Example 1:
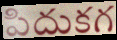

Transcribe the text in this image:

పిదుకగ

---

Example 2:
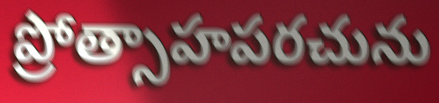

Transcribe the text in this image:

ప్రోత్సాహపరచును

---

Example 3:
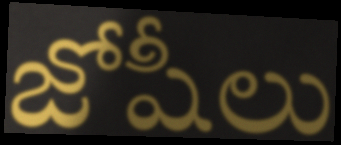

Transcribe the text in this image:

జోషీలు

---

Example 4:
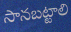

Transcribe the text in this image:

సానబట్టాలి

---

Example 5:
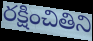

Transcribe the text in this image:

రక్షించితిని